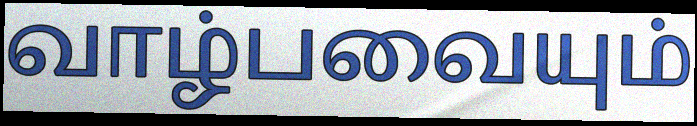
வாழ்பவையும்